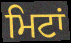
ਮਿਟਾਂ